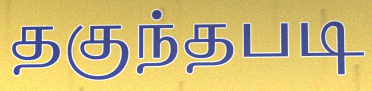
தகுந்தபடி